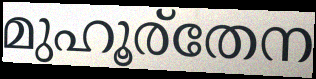
മുഹൂര്തേന